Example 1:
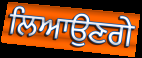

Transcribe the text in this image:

ਲਿਆਉਣਗੇ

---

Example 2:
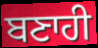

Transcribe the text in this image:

ਬਣਾਹੀ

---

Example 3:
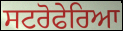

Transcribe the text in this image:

ਸਟਰੋਫੇਰਿਆ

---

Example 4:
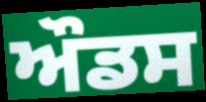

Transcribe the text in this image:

ਔਡਸ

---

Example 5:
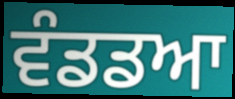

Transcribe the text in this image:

ਵੰਡਡਆ